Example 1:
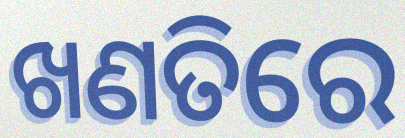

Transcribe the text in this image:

ଖଣତିରେ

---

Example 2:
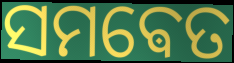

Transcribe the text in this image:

ସମଵେତ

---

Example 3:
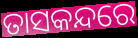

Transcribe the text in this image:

ତାସକନ୍ଦରେ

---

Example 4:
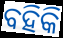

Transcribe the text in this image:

ବହିକି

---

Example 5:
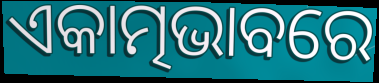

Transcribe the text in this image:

ଏକାତ୍ମଭାବରେ